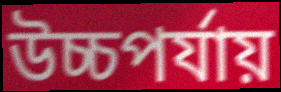
উচ্চপর্যায়